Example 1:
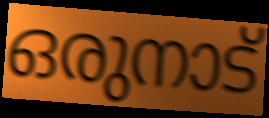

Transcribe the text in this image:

ഒരുനാട്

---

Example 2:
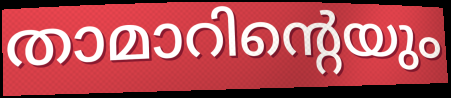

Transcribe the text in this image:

താമാറിന്റെയും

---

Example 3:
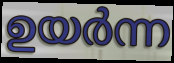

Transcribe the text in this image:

ഉയർന്ന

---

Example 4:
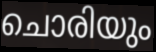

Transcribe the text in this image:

ചൊരിയും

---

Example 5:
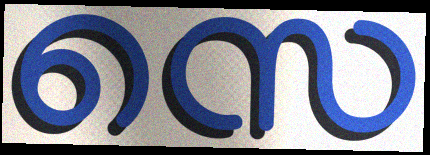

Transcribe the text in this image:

സെ